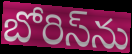
బోరిస్‌ను